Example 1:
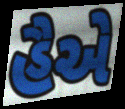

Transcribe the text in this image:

હૈએ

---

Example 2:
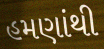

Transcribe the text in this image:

હમણાંથી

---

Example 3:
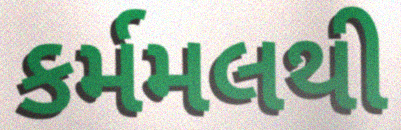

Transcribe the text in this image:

કર્મમલથી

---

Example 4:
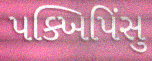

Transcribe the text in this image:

પક્ખિપિંસુ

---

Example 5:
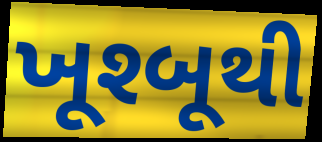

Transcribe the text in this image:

ખૂશ્બૂથી